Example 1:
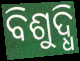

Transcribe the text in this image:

ବିଶୁଦ୍ଧି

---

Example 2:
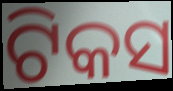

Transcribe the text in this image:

ଟିକସ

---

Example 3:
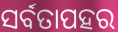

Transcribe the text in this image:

ସର୍ବତାପହର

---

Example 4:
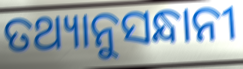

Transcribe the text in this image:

ତଥ୍ୟାନୁସନ୍ଧାନୀ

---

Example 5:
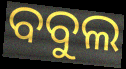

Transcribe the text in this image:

ବବୁଲ